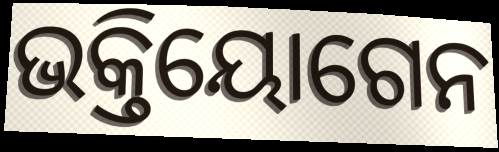
ଭକ୍ତିୟୋଗେନ